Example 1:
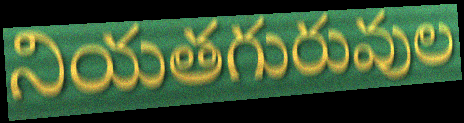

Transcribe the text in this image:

నియతగురువుల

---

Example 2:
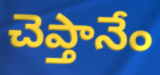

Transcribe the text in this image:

చెప్తానేం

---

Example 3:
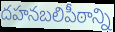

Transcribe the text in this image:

దహనబలిపీఠాన్ని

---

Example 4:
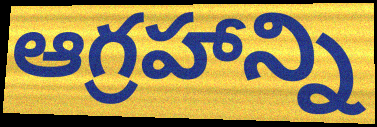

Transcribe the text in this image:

ఆగ్రహాన్ని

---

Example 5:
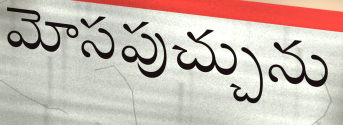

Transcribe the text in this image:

మోసపుచ్చును